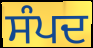
ਸੰਪਦ